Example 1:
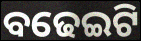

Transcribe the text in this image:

ବଢେଇଟି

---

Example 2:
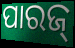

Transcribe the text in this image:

ପାରଜ୍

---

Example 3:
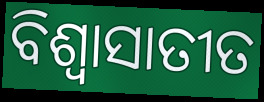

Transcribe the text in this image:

ବିଶ୍ୱାସାତୀତ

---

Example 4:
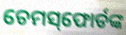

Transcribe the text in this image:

ଚେମସ୍‌ଫୋର୍ଡଙ୍କ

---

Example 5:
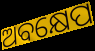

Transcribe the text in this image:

ଅବକ୍ଷେପ